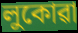
লুকোৱা